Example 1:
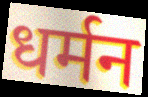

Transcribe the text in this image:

धर्मन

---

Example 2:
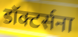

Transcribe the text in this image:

डॉक्टर्सना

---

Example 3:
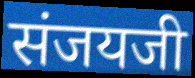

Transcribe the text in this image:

संजयजी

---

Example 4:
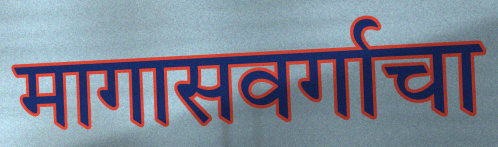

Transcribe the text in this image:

मागासवर्गाचा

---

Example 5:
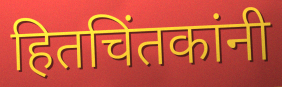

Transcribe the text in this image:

हितचिंतकांनी